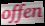
offen